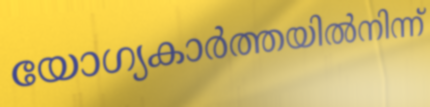
യോഗ്യകാർത്തയിൽനിന്ന്